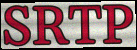
SRTP